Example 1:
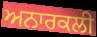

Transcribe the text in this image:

ਅਨਾਰਕਲੀ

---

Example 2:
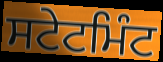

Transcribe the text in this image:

ਸਟੇਟਮਿੰਟ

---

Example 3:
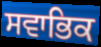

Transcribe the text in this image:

ਸਵਾਭਿਕ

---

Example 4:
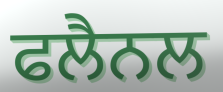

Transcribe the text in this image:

ਫਲੈਨਲ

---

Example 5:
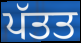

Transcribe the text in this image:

ਪੱਤਤ